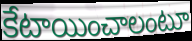
కేటాయించాలంటూ